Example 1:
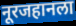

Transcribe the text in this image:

नूरजहानला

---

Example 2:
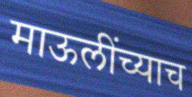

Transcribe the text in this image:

माऊलींच्याच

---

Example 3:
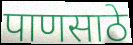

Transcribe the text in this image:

पाणसाठे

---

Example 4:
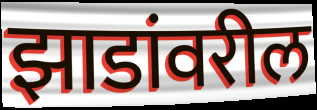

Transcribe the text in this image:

झाडांवरील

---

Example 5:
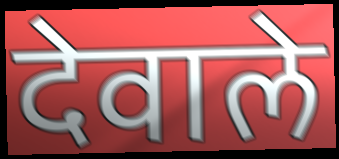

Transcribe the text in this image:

देवाले